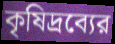
কৃষিদ্রব্যের